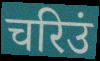
चरिउं